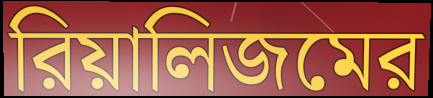
রিয়ালিজমের